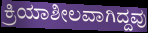
ಕ್ರಿಯಾಶೀಲವಾಗಿದ್ದವು